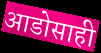
आडोसाही